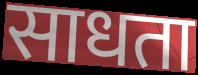
साधता